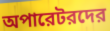
অপারেটরদের